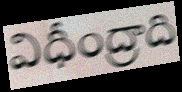
విధీంద్రాది